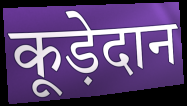
कूड़ेदान